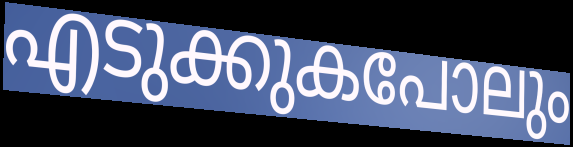
എടുക്കുകപോലും